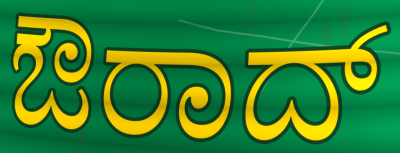
ಔರಾದ್